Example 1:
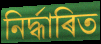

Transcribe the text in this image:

নিৰ্দ্ধাৰিত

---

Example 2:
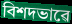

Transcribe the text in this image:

বিশদভাৱে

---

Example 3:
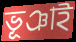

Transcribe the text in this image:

ভূঞাই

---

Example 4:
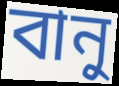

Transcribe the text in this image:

বানু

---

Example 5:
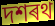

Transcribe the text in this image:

দশৰথ